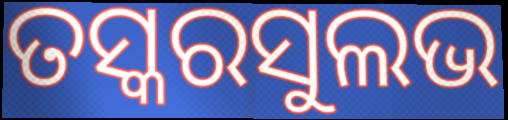
ତସ୍କରସୁଲଭ